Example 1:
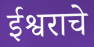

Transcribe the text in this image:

ईश्वराचे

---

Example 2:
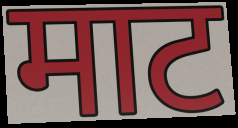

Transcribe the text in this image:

माट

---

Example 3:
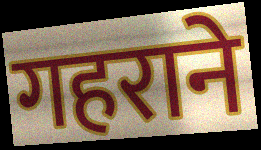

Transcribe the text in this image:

गहराने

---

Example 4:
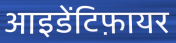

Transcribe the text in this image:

आइडेंटिफ़ायर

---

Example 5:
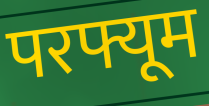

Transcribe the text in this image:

परफ्यूम